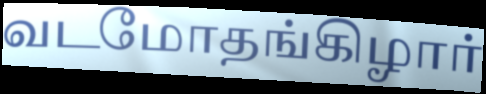
வடமோதங்கிழார்